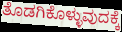
ತೊಡಗಿಕೊಳ್ಳುವುದಕ್ಕೆ